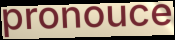
pronouce